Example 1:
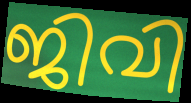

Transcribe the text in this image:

ജിവി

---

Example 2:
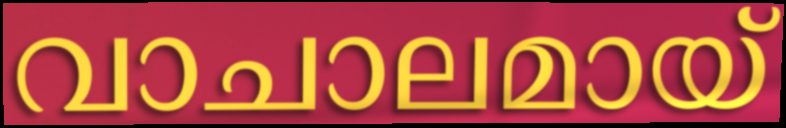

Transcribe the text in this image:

വാചാലമായ്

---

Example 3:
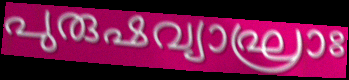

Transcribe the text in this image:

പുരുഷവ്യാഘ്രാഃ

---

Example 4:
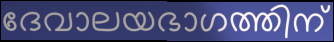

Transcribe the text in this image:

ദേവാലയഭാഗത്തിന്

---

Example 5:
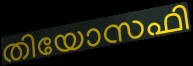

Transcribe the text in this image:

തിയോസഫി